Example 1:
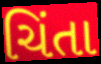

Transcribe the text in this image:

ચિંતા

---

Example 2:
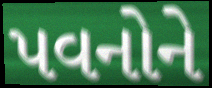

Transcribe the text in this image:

પવનોને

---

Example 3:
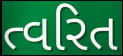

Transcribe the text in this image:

ત્વરિત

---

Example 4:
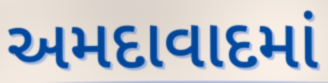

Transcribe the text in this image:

અમદાવાદમાં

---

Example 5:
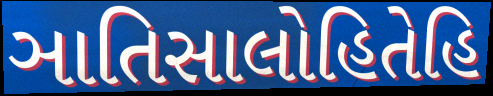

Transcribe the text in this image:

ઞાતિસાલોહિતેહિ